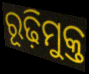
ରୂଢ଼ିମୁକ୍ତ